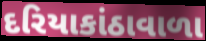
દરિયાકાંઠાવાળા